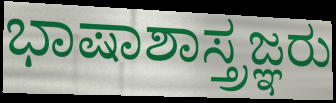
ಭಾಷಾಶಾಸ್ತ್ರಜ್ಞರು